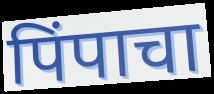
पिंपाचा